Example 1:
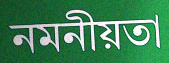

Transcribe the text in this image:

নমনীয়তা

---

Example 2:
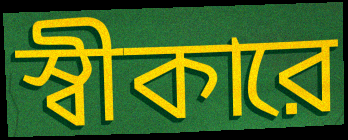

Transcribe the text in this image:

স্বীকারে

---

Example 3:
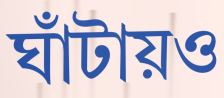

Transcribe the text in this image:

ঘাঁটায়ও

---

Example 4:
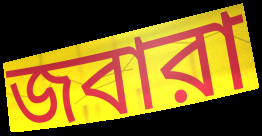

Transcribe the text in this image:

জবারা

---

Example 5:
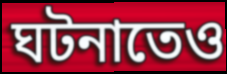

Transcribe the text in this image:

ঘটনাতেও